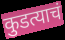
कुडत्याचं